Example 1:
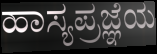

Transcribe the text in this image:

ಹಾಸ್ಯಪ್ರಜ್ಞೆಯ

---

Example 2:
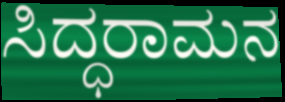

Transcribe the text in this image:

ಸಿದ್ಧರಾಮನ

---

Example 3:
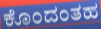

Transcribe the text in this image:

ಕೊಂದಂತಹ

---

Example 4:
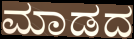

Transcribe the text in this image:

ಮಾಡದ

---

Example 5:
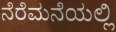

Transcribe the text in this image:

ನೆರೆಮನೆಯಲ್ಲಿ